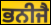
ਭਨੀਜੈ